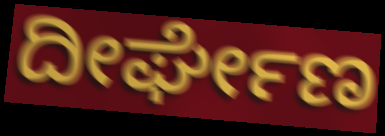
ದೀರ್ಘೇಣ